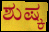
ಶುಷ್ಕ